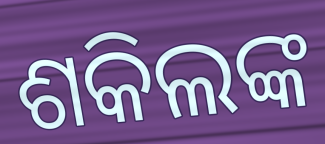
ଶକିଲଙ୍କ